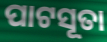
ପାଟସୂତା